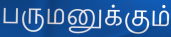
பருமனுக்கும்